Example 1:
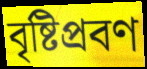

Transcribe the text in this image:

বৃষ্টিপ্রবণ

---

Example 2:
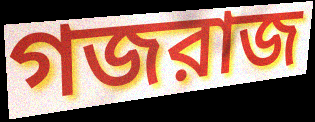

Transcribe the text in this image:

গজরাজ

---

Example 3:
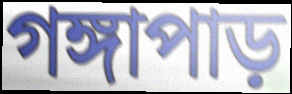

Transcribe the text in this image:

গঙ্গাপাড়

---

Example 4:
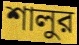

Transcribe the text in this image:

শালুর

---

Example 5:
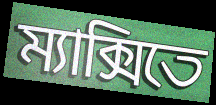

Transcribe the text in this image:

ম্যাক্সিতে